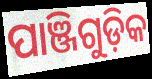
ପାଞ୍ଜିଗୁଡ଼ିକ